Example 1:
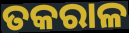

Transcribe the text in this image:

ତକରାଳ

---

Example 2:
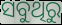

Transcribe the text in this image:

ସବୁଥିରୁ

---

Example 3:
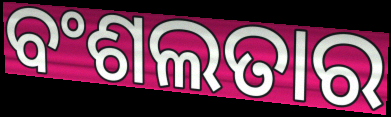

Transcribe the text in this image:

ବଂଶଲତାର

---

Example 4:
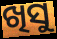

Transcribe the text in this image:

ଖିସୁ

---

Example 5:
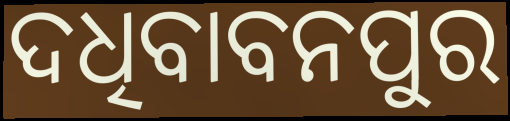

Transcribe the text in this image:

ଦଧିବାବନପୁର